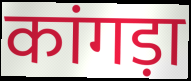
कांगड़ा